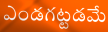
ఎండగట్టడమే